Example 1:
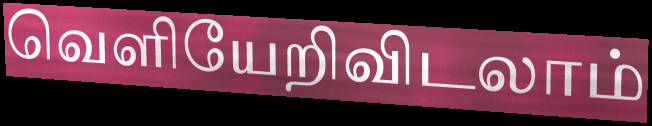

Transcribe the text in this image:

வெளியேறிவிடலாம்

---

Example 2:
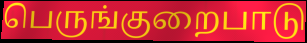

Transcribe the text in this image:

பெருங்குறைபாடு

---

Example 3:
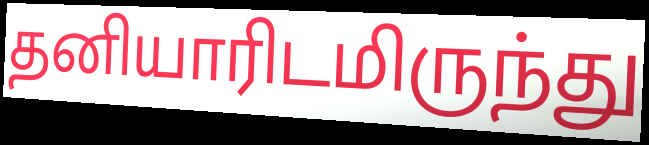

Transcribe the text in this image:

தனியாரிடமிருந்து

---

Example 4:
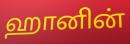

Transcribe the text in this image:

ஹானின்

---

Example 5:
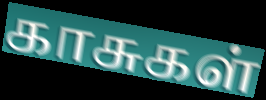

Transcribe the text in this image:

காசுகள்